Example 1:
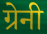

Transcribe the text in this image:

ग्रेनी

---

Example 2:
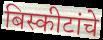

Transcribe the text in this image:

बिस्कीटांचे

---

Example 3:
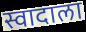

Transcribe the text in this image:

स्वादाला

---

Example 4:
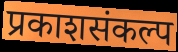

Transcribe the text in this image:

प्रकाशसंकल्प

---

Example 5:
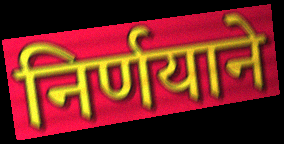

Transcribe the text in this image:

निर्णयाने